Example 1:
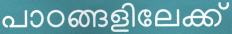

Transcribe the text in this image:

പാഠങ്ങളിലേക്ക്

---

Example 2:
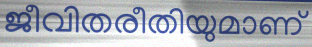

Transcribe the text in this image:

ജീവിതരീതിയുമാണ്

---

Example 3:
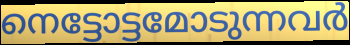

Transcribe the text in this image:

നെട്ടോട്ടമോടുന്നവർ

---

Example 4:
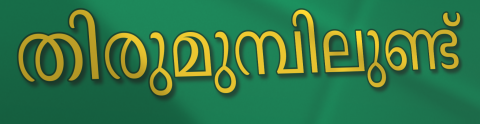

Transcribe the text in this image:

തിരുമുമ്പിലുണ്ട്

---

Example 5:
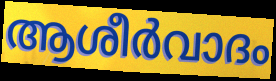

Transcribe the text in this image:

ആശീർവാദം